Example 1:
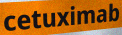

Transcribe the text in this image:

cetuximab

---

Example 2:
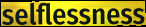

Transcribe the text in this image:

selflessness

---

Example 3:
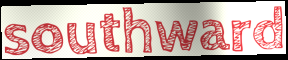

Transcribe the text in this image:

southward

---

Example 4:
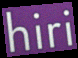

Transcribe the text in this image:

hiri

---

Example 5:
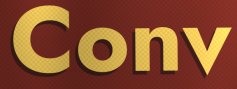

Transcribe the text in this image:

Conv